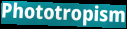
Phototropism